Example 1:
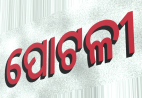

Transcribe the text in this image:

ପୋଟଳୀ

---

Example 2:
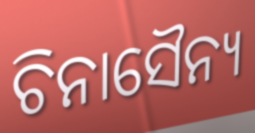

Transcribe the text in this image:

ଚିନାସୈନ୍ୟ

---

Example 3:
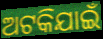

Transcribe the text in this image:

ଅଟକିଯାଇଁ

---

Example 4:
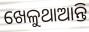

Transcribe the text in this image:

ଖେଳୁଥାଆନ୍ତି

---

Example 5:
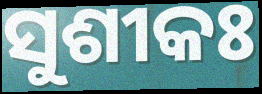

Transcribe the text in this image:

ସୁଶୀକଃ